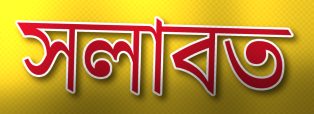
সলাবত